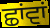
ਛਾਂਵਾਂ